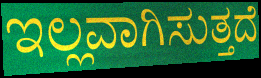
ಇಲ್ಲವಾಗಿಸುತ್ತದೆ